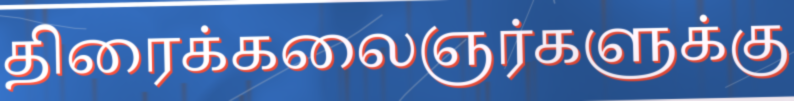
திரைக்கலைஞர்களுக்கு